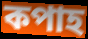
কপাহ